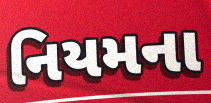
નિયમના